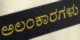
ಅಲಂಕಾರಗಳು